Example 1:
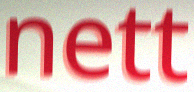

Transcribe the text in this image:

nett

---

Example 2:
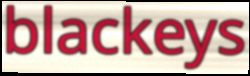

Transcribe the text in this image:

blackeys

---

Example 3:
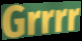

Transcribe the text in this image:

Grrrr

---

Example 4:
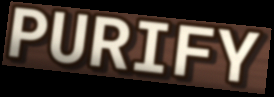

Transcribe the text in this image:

PURIFY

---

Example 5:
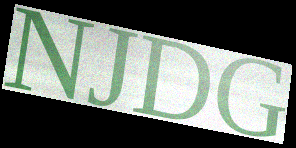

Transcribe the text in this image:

NJDG